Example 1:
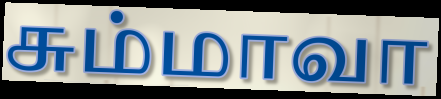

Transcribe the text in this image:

சும்மாவா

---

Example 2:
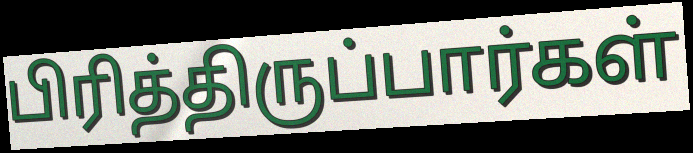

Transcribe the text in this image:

பிரித்திருப்பார்கள்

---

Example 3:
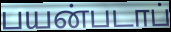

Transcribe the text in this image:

பயன்படாப்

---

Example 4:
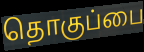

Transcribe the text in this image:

தொகுப்பை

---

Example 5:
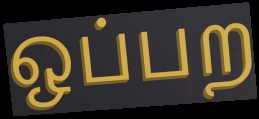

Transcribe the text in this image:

ஒப்பற